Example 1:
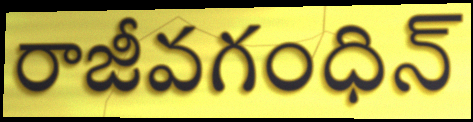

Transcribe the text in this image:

రాజీవగంధిన్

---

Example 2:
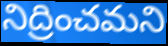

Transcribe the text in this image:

నిద్రించమని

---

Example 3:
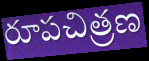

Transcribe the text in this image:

రూపచిత్రణ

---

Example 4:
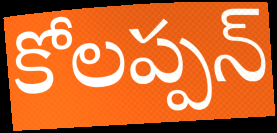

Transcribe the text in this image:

కోలప్పన్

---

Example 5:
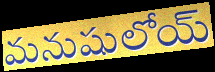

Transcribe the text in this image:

మనుషులోయ్